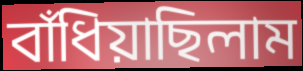
বাঁধিয়াছিলাম